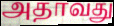
அதாவது